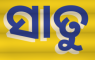
ସାତୁ